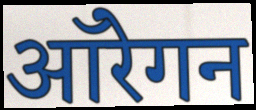
ऑरेगन